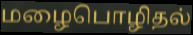
மழைபொழிதல்